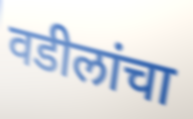
वडीलांचा